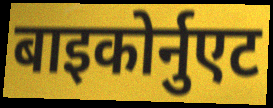
बाइकोर्नुएट